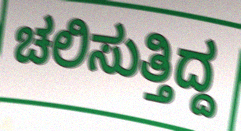
ಚಲಿಸುತ್ತಿದ್ದ